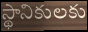
స్థానికులకు